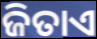
ଜିତାଏ